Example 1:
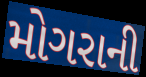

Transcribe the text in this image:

મોગરાની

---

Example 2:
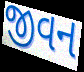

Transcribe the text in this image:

જીવન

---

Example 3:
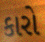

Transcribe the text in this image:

કારો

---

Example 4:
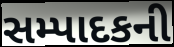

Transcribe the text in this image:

સમ્પાદકની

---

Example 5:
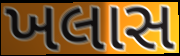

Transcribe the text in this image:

ખલાસ